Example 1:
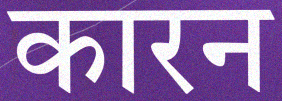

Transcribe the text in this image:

कारन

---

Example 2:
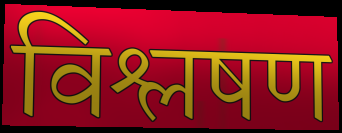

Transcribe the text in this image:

विश्लषण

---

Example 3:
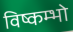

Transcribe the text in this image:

विष्कम्भो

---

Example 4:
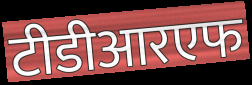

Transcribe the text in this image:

टीडीआरएफ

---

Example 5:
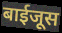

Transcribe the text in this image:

बाईजूस